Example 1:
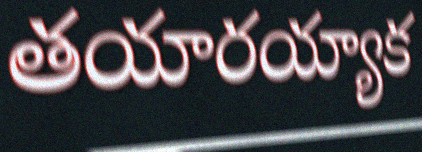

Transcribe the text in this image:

తయారయ్యాక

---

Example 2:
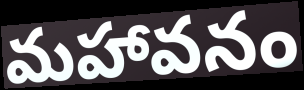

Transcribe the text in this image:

మహావనం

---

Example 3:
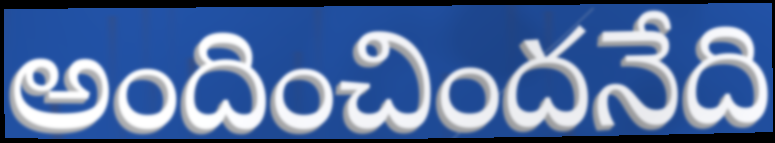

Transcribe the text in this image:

అందించిందనేది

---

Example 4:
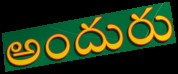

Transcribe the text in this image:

అందురు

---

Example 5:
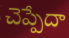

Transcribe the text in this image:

చెప్పేదా